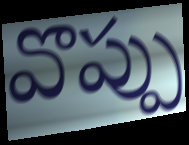
వొప్పు